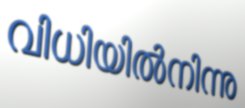
വിധിയിൽനിന്നു